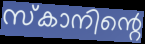
സ്കാനിന്റെ